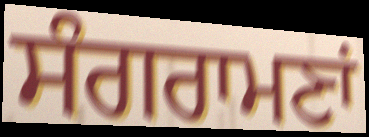
ਸੰਗਰਾਮਣਾਂ